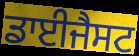
ਡਾਈਜੈਸਟ